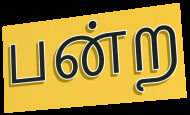
பன்ற